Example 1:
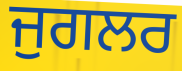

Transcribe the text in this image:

ਜੁਗਲਰ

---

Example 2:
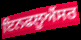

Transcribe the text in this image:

ਇਨਫਲੂਐਂਸਰ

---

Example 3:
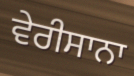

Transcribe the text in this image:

ਵੇਰੀਸਾਨਾ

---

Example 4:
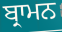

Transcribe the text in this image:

ਬ੍ਰਾਮਨ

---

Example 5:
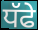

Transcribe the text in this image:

ਧੱਫੇ